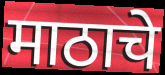
माठाचे